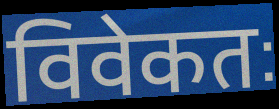
विवेकतः